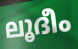
ലൂദീം